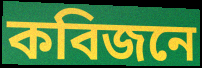
কবিজনে